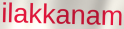
ilakkanam